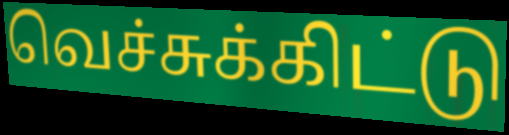
வெச்சுக்கிட்டு